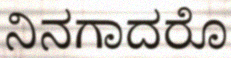
ನಿನಗಾದರೊ